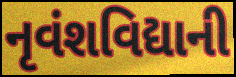
નૃવંશવિદ્યાની